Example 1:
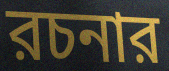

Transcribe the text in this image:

রচনার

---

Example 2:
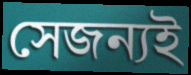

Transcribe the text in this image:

সেজন্যই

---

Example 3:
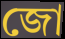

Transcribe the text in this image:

জো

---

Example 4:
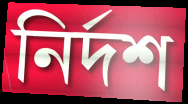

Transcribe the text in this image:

নির্দশ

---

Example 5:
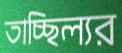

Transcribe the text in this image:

তাচ্ছিল্যর